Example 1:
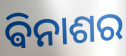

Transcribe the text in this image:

ଵିନାଶର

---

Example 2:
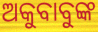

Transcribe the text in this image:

ଅକୁବାବୁଙ୍କ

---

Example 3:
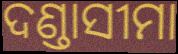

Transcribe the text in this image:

ଦଣ୍ଡାସୀମା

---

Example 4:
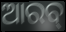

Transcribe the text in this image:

ଆରବ୍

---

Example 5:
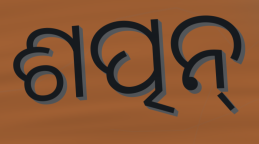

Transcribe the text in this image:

ଶତ୍ପନ୍